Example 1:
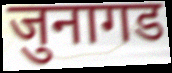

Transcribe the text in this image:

जुनागड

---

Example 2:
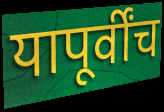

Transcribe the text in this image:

यापूर्वींच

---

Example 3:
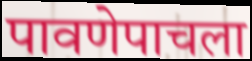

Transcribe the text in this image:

पावणेपाचला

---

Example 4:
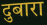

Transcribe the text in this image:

दुबारा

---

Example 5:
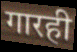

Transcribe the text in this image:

गारही